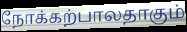
நோக்கற்பாலதாகும்